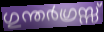
ഗുന്തർഗ്രസ്സ്